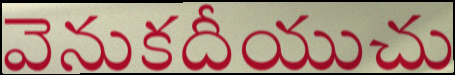
వెనుకదీయుచు